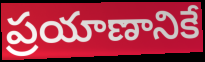
ప్రయాణానికే